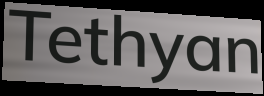
Tethyan